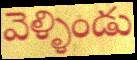
వెళ్ళిండు